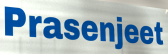
Prasenjeet